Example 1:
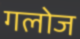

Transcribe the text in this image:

गलोज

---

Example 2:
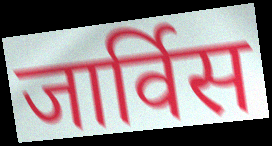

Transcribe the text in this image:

जार्विस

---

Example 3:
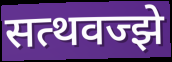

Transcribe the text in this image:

सत्थवज्झे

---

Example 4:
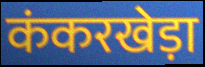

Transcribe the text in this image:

कंकरखेड़ा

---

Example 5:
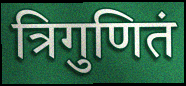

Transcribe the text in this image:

त्रिगुणितं